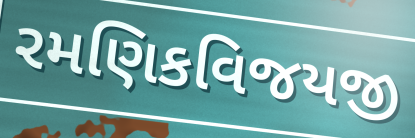
રમણિકવિજયજી